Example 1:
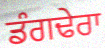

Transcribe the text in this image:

ਡੰਗਢੇਰਾ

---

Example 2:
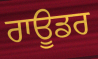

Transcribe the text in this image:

ਰਾਊਡਰ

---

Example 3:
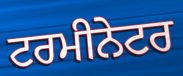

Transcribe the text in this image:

ਟਰਮੀਨੇਟਰ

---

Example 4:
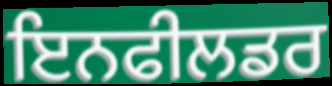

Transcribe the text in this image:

ਇਨਫੀਲਡਰ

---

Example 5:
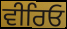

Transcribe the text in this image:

ਵੀਰਿਓ